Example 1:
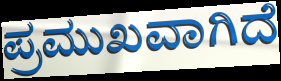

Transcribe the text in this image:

ಪ್ರಮುಖವಾಗಿದೆ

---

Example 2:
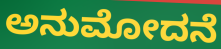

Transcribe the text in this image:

ಅನುಮೋದನೆ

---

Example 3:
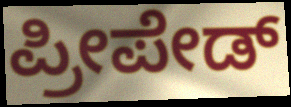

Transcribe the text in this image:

ಪ್ರೀಪೇಡ್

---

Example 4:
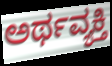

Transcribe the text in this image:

ಅರ್ಥವ್ಯಕ್ತಿ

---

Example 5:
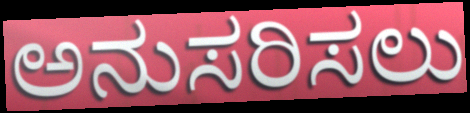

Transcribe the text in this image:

ಅನುಸರಿಸಲು